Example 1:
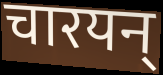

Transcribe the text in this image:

चारयन्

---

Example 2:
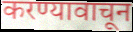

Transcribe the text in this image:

करण्यावाचून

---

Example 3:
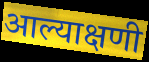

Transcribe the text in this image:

आल्याक्षणी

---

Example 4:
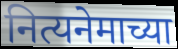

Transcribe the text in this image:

नित्यनेमाच्या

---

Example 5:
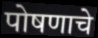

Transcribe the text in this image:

पोषणाचे